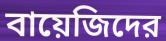
বায়েজিদের